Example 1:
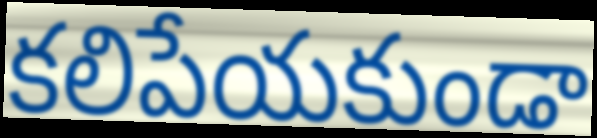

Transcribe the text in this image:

కలిపేయకుండా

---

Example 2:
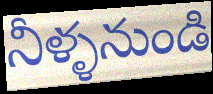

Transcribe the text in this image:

నీళ్ళనుండి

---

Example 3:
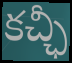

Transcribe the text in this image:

కచ్ఛీ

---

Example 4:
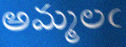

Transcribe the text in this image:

అమ్మలఁ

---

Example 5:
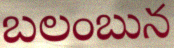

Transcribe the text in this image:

బలంబున